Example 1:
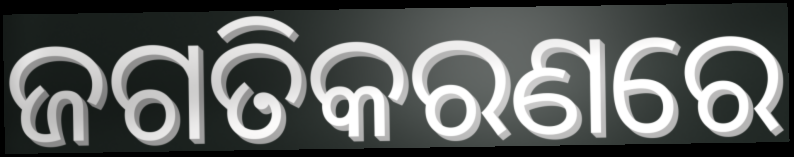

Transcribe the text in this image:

ଜଗତିକରଣରେ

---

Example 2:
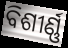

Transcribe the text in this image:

ବିଶୀର୍ଣ୍ଣ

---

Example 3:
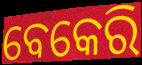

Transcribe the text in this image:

ବେକେରି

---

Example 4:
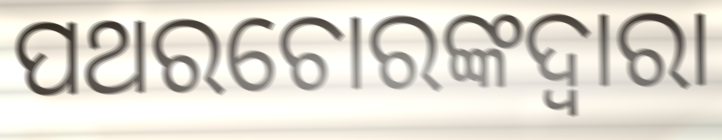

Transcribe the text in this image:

ପଥରଚୋରଙ୍କଦ୍ୱାରା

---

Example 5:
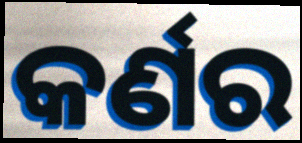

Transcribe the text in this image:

କର୍ଣର